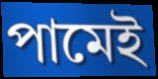
পামেই